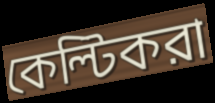
কেল্টিকরা